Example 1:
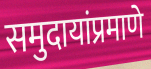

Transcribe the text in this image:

समुदायांप्रमाणे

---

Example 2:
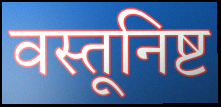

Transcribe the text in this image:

वस्तूनिष्ट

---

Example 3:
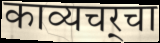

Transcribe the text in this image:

काव्यचर्चा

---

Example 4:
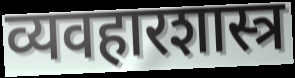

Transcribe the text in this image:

व्यवहारशास्त्र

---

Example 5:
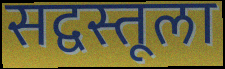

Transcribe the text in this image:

सद्वस्तूला